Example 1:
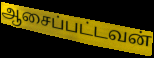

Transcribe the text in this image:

ஆசைப்பட்டவன்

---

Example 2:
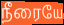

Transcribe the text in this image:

நீரையே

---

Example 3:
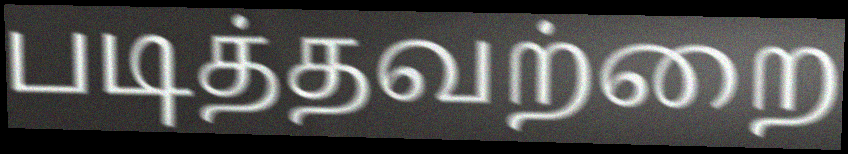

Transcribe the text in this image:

படித்தவற்றை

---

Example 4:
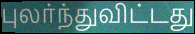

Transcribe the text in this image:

புலர்ந்துவிட்டது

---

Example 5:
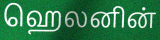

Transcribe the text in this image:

ஹெலனின்